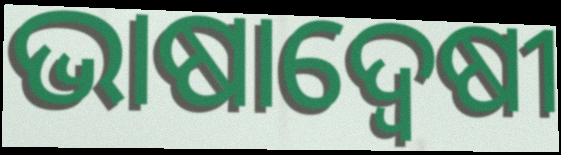
ଭାଷାଦ୍ଵେଷୀ